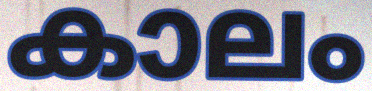
കാലം